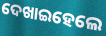
ଦେଖାଇହେଲେ